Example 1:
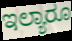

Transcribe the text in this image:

ಇಲ್ಯಾರೂ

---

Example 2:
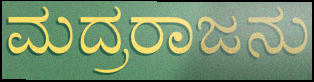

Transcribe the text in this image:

ಮದ್ರರಾಜನು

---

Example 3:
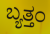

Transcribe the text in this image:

ಬ್ಯತ್ತಂ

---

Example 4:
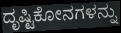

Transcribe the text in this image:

ದೃಷ್ಟಿಕೋನಗಳನ್ನು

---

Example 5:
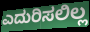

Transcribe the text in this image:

ಎದುರಿಸಲಿಲ್ಲ